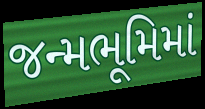
જન્મભૂમિમાં